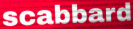
scabbard